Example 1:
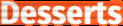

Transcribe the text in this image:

Desserts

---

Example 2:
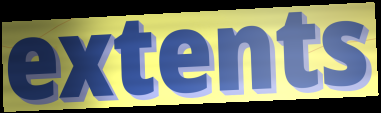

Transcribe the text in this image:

extents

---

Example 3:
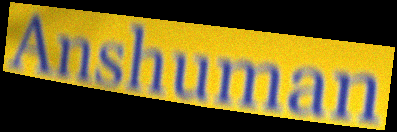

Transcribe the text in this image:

Anshuman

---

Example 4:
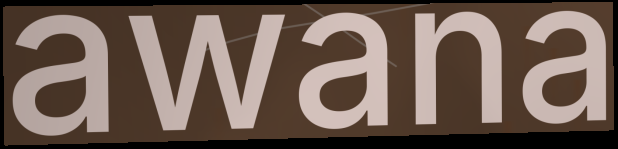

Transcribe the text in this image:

awana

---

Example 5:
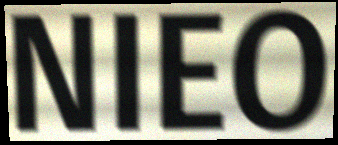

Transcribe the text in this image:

NIEO